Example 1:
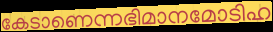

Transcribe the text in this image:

കേടാണെന്നഭിമാനമോടിഹ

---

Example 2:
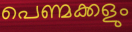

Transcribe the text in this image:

പെണ്മക്കളും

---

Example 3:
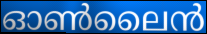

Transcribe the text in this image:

ഓൺലൈൻ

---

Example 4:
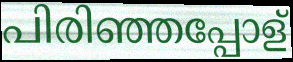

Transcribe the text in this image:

പിരിഞ്ഞപ്പോള്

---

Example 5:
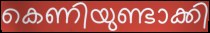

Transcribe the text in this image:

കെണിയുണ്ടാക്കി